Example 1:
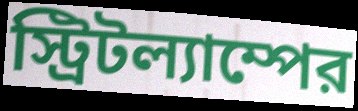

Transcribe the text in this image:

স্ট্রিটল্যাম্পের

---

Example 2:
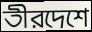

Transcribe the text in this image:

তীরদেশে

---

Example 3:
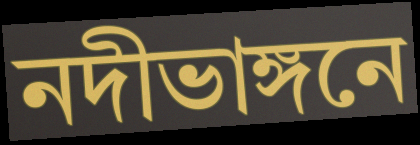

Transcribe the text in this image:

নদীভাঙ্গনে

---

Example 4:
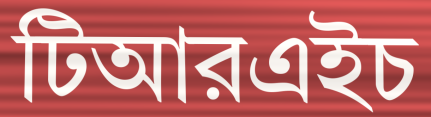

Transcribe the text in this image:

টিআরএইচ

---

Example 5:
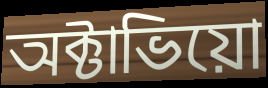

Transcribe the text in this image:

অক্টাভিয়ো